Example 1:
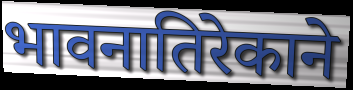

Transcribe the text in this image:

भावनातिरेकाने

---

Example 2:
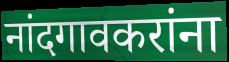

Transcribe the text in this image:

नांदगावकरांना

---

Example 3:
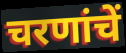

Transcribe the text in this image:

चरणांचें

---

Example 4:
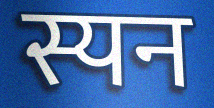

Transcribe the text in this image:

स्यन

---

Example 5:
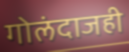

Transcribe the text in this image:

गोलंदाजही